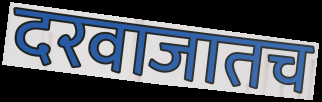
दरवाजातच